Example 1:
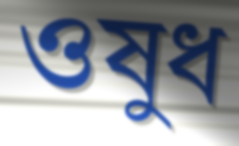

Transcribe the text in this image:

ওষুধ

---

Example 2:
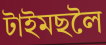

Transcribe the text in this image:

টাইমছলৈ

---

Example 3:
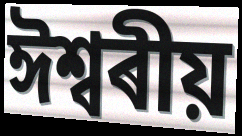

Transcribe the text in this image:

ঈশ্বৰীয়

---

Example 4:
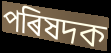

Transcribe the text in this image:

পৰিষদক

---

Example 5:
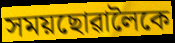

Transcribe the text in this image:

সময়ছোৱালৈকে